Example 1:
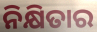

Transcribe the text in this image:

ନିକ୍ଷିତାର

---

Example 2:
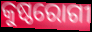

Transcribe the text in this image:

କୁଷ୍ଠରୋଗୀ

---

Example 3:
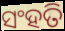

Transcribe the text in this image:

ସଂହତି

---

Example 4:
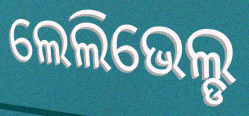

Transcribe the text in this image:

ଲେଲିଭେଲ୍ଡ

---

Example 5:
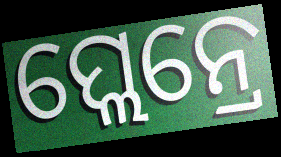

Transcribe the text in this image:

ପ୍ଲେନ୍ରେ